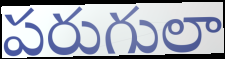
పరుగులా